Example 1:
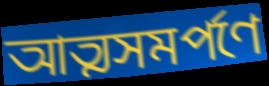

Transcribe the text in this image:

আত্মসমর্পণে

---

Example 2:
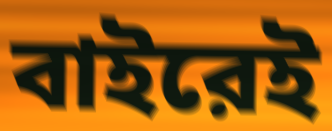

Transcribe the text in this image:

বাইরেই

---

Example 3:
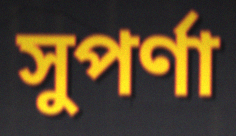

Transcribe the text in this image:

সুপর্ণা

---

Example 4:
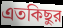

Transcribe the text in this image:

এতকিছুর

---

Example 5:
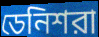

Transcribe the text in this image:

ডেনিশরা